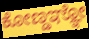
ಕೋಣ್ಡಞ್ಞೋ